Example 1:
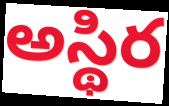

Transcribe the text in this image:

అస్థిర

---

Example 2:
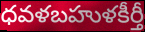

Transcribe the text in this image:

ధవళబహుళకీర్తీ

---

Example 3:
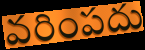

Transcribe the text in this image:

వరింపదు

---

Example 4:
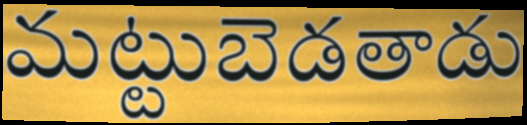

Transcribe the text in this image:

మట్టుబెడతాడు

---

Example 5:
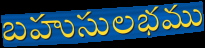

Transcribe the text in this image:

బహుసులభము